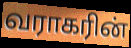
வராகரின்